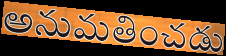
అనుమతించడు